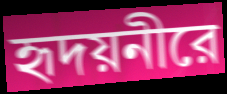
হৃদয়নীরে